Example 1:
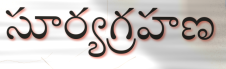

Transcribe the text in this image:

సూర్యగ్రహణ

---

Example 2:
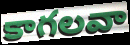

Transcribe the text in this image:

కాగలవా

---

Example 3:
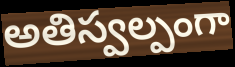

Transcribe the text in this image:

అతిస్వల్పంగా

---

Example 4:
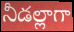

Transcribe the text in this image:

నీడల్లాగా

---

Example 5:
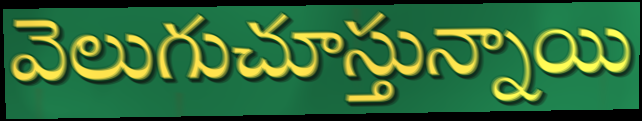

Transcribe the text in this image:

వెలుగుచూస్తున్నాయి